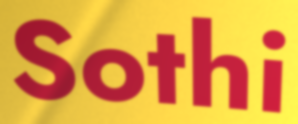
Sothi